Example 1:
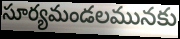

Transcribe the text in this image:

సూర్యమండలమునకు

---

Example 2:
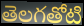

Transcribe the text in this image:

తెలగతోటి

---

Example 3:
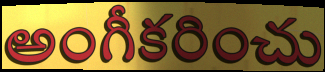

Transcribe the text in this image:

అంగీకరించు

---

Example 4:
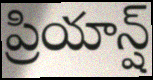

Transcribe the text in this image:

ప్రియాన్ష్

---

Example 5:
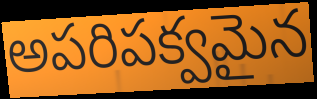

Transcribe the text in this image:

అపరిపక్వమైన